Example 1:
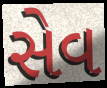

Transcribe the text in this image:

સેવ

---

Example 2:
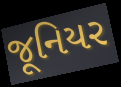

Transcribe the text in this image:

જૂનિયર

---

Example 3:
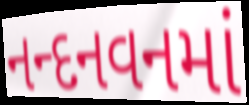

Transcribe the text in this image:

નન્દનવનમાં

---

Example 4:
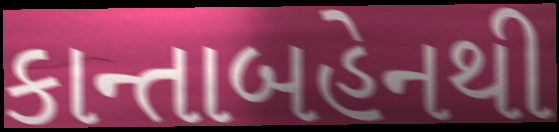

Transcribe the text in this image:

કાન્તાબહેનથી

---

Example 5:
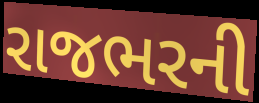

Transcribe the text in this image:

રાજભરની